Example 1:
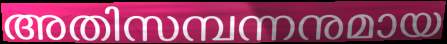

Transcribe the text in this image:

അതിസമ്പന്നനുമായ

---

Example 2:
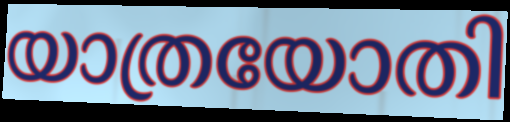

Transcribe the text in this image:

യാത്രയോതി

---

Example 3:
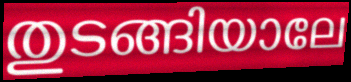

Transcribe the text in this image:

തുടങ്ങിയാലേ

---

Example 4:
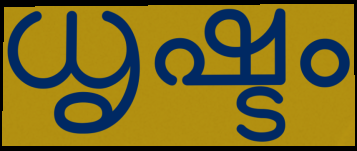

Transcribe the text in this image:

ധൃഷ്ടം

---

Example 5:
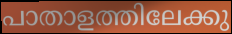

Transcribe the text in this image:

പാതാളത്തിലേക്കു